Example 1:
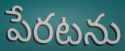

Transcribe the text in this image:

పేరటను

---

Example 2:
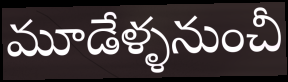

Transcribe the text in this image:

మూడేళ్ళనుంచీ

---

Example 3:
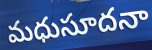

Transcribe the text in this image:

మధుసూదనా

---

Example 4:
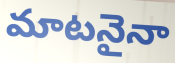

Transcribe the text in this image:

మాటనైనా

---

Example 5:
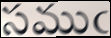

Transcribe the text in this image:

సముఁ